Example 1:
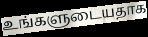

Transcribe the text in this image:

உங்களுடையதாக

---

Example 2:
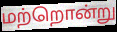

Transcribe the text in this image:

மற்றொன்று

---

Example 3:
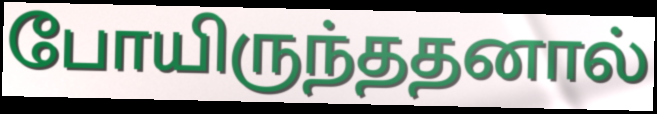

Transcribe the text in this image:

போயிருந்ததனால்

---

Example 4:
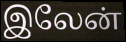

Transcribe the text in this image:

இலேன்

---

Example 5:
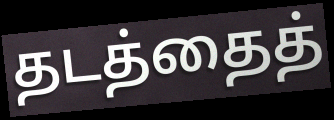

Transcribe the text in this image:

தடத்தைத்